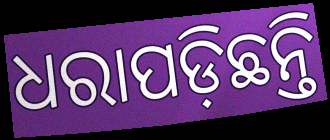
ଧରାପଡ଼ିଛନ୍ତି